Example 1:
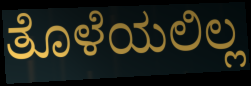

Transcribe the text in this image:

ತೊಳೆಯಲಿಲ್ಲ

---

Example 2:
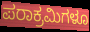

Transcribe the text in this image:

ಪರಾಕ್ರಮಿಗಳೂ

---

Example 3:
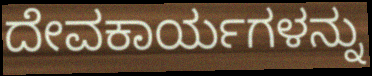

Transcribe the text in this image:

ದೇವಕಾರ್ಯಗಳನ್ನು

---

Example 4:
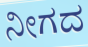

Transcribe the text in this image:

ನೀಗದ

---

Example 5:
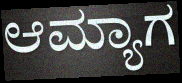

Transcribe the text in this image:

ಆಮ್ಯಾಗ